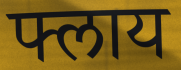
फ्लाय